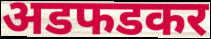
अडफडकर